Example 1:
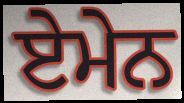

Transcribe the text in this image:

ਏਮੇਨ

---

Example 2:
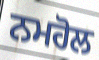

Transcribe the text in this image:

ਨਮਹੋਲ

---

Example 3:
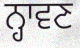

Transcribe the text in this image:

ਨ੍ਹਾਵਣ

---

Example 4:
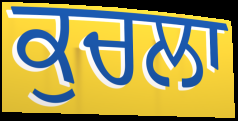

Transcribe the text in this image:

ਕੁਚਲਾ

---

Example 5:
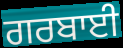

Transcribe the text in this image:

ਗਰਬਾਈ